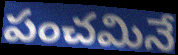
పంచమినే